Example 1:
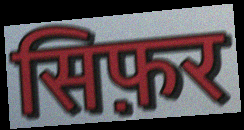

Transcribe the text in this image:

सिफ़र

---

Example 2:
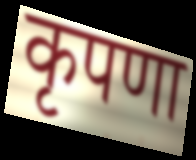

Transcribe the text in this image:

कृपणा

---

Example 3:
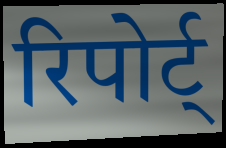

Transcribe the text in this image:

रिपोर्ट्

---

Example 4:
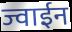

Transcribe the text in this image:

ज्वाईन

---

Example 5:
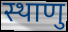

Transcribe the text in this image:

स्थाणु